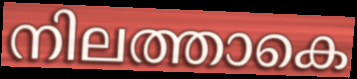
നിലത്താകെ